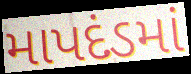
માપદંડમાં